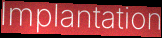
Implantation